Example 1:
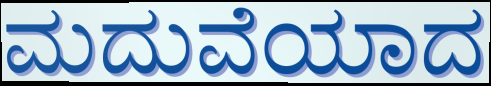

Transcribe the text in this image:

ಮದುವೆಯಾದ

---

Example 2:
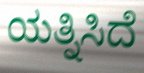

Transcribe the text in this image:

ಯತ್ನಿಸಿದೆ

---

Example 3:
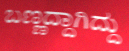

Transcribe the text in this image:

ಬಣ್ಣದ್ದಾಗಿದ್ದು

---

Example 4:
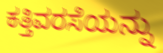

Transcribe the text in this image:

ಕತ್ತಿವರಸೆಯನ್ನು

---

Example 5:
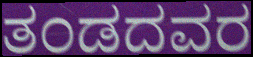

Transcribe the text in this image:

ತಂಡದವರ